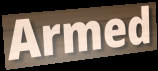
Armed